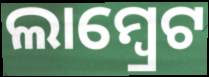
ଲାମ୍ୱ୍ରେଟ